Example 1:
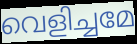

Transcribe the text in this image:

വെളിച്ചമേ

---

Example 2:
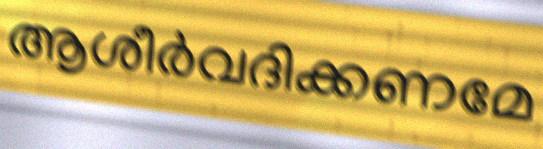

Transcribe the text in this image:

ആശീർവദിക്കണമേ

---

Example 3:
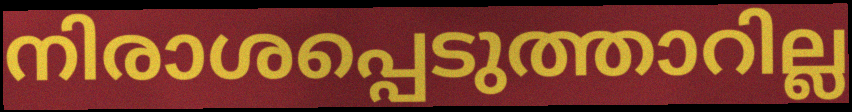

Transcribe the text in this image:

നിരാശപ്പെടുത്താറില്ല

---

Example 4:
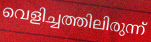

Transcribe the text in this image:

വെളിച്ചത്തിലിരുന്ന്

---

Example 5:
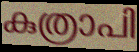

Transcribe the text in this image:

കുത്രാപി